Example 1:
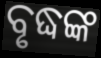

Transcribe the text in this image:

ବୃଦ୍ଧଙ୍କ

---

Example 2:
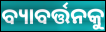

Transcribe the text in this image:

ବ୍ୟାବର୍ତ୍ତନକୁ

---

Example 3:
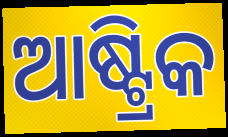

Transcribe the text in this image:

ଆଷ୍ଟ୍ରିକ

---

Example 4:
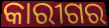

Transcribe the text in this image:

କାରୀଗର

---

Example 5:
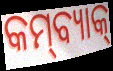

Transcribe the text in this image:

କମ୍‌ବ୍ୟାକ୍